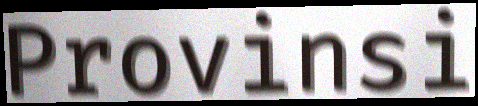
Provinsi